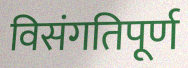
विसंगतिपूर्ण